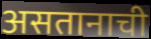
असतानाची